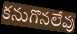
కనుగొనలేవు